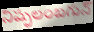
నిష్ఫలంబగున్